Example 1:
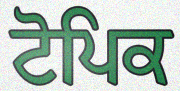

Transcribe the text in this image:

ਟੋਪਿਕ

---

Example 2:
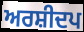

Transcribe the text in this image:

ਅਰਸ਼ੀਦਪ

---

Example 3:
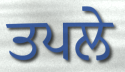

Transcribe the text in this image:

ਤਪਲੇ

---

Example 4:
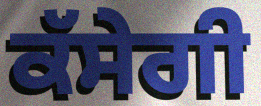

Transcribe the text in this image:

ਕੱਸੇਗੀ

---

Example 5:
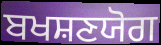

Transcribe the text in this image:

ਬਖਸ਼ਣਯੋਗ